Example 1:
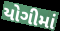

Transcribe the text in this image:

યોગીમાં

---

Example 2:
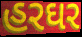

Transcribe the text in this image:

હરઘર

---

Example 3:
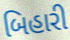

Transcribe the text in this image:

બિહારી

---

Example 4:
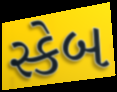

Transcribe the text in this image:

સ્કેબ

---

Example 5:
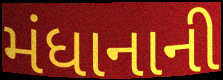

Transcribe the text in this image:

મંધાનાની